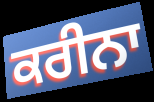
ਕਰੀਨਾ